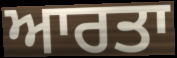
ਆਰਤਾ